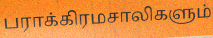
பராக்கிரமசாலிகளும்